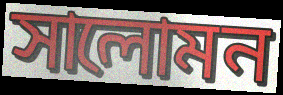
সালোমন